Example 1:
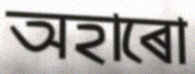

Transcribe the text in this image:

অহাৰো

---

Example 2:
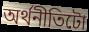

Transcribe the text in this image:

অৰ্থনীতিটো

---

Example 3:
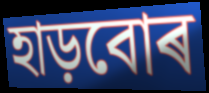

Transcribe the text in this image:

হাড়বোৰ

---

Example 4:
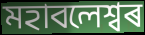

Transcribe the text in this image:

মহাবলেশ্বৰ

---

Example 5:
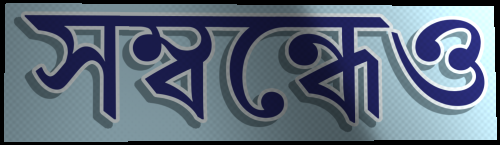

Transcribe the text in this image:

সম্বন্ধেও